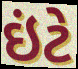
ઇંટે